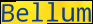
Bellum